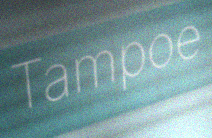
Tampoe